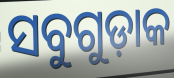
ସବୁଗୁଡ଼ାକ